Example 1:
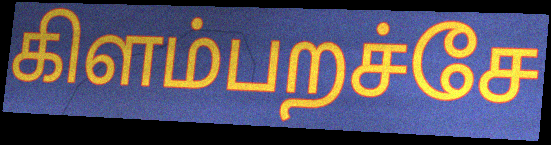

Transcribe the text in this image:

கிளம்பறச்சே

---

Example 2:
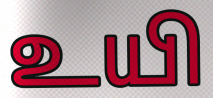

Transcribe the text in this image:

உயி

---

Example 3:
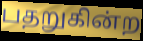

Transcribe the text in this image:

பதறுகின்ற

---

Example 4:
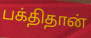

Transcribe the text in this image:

பக்திதான்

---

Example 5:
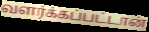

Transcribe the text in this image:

வளர்க்கப்பட்டான்